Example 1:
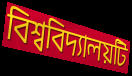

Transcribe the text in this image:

বিশ্ববিদ্যালয়টি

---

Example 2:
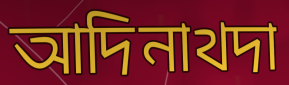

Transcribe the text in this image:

আদিনাথদা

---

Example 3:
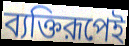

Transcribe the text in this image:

ব্যক্তিরূপেই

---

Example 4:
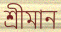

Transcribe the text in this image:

শ্রীমান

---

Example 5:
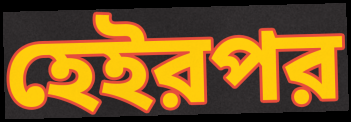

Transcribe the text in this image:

হেইরপর